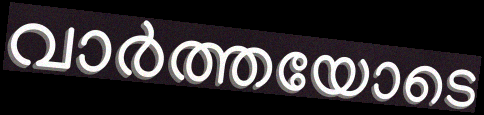
വാർത്തയോടെ